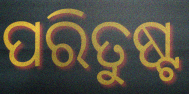
ପରିତୁଷ୍ଟ